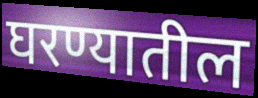
घरण्यातील